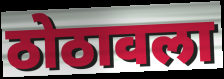
ठोठावला